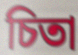
চিতা